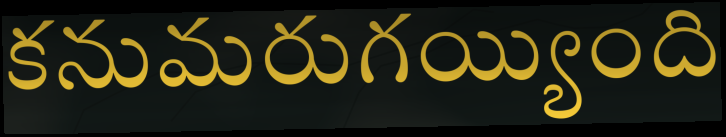
కనుమరుగయ్యింది